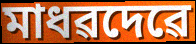
মাধৱদেৱে